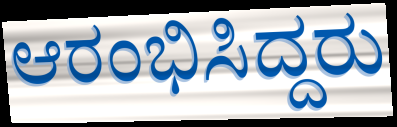
ಆರಂಭಿಸಿದ್ದರು